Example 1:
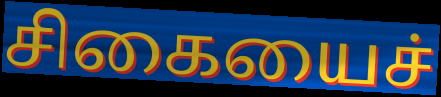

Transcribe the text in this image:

சிகையைச்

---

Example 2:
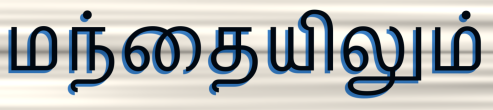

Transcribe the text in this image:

மந்தையிலும்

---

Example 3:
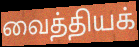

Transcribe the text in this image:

வைத்தியக்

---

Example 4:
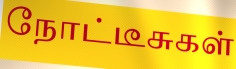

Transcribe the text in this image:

நோட்டீசுகள்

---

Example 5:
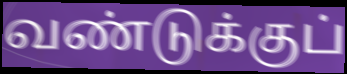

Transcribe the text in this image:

வண்டுக்குப்